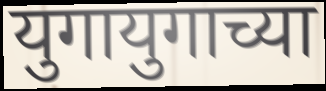
युगायुगाच्या